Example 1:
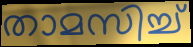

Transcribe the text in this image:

താമസിച്ച്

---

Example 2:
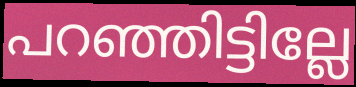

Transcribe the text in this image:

പറഞ്ഞിട്ടില്ലേ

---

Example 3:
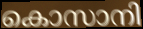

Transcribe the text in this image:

കൊസാനി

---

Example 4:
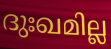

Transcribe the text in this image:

ദുഃഖമില്ല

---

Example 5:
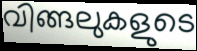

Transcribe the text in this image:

വിങ്ങലുകളുടെ